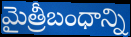
మైత్రీబంధాన్ని